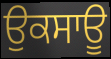
ਉਕਸਾਊ